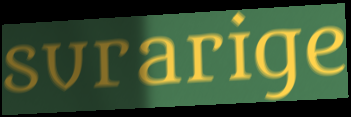
surarige